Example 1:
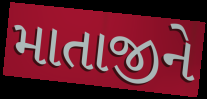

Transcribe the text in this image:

માતાજીને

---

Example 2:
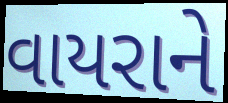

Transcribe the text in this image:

વાયરાને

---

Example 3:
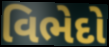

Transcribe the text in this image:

વિભેદો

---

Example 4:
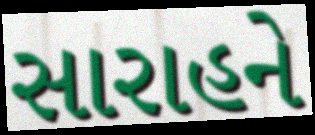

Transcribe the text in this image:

સારાહને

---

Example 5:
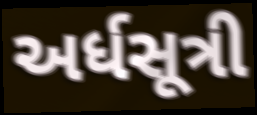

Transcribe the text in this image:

અર્ધસૂત્રી